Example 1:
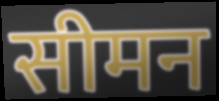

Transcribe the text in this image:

सीमन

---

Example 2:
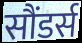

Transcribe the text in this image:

सौंडर्स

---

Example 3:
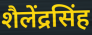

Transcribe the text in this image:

शैलेंद्रसिंह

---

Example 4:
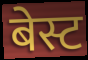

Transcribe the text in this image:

बेस्ट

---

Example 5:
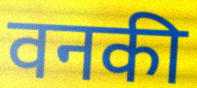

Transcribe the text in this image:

वनकी